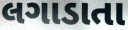
લગાડાતા